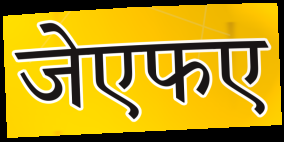
जेएफए